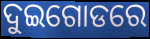
ଦୁଇଗୋଡରେ